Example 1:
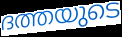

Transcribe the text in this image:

ദത്തയുടെ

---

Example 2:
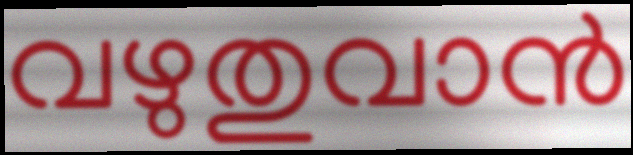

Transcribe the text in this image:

വഴുതുവാൻ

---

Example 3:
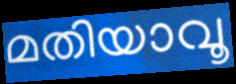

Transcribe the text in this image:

മതിയാവൂ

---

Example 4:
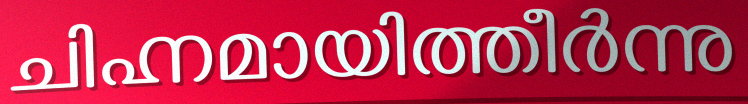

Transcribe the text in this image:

ചിഹ്നമായിത്തീർന്നു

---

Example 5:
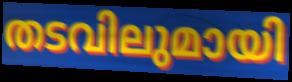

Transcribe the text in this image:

തടവിലുമായി